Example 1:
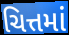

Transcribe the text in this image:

ચિત્તમાં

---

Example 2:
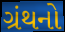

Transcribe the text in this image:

ગ્રંથનો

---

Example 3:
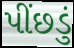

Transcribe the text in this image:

પીંછડું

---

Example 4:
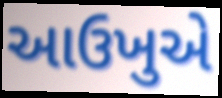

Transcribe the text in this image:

આઉખુએ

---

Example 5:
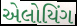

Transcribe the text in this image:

એલોયિંગ